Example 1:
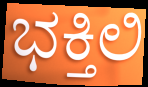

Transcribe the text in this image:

ಭಕ್ತಿಲಿ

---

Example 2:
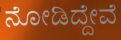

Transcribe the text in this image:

ನೋಡಿದ್ದೇವೆ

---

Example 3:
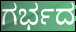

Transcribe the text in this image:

ಗರ್ಭದ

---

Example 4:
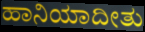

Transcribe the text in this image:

ಹಾನಿಯಾದೀತು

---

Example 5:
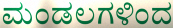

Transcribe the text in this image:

ಮಂಡಲಗಳಿಂದ